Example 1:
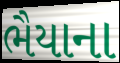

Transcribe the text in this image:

ભૈયાના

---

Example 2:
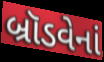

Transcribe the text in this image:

બ્રૉડવેનાં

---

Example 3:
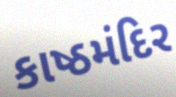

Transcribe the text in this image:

કાષ્ઠમંદિર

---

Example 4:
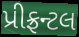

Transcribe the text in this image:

પ્રીફ્રન્ટલ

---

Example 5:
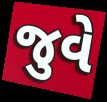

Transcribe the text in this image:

જુવે